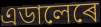
এডালেৰে